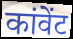
कांवेंट